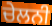
ਚੇਲਨੀ